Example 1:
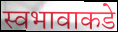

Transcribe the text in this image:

स्वभावाकडे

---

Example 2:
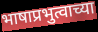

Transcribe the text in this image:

भाषाप्रभुत्वाच्या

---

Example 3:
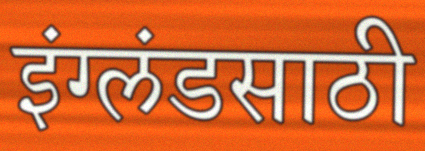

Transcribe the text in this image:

इंग्लंडसाठी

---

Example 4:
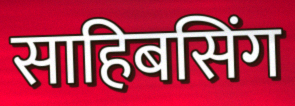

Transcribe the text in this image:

साहिबसिंग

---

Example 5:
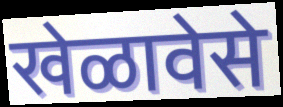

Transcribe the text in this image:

खेळावेसे